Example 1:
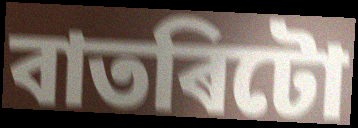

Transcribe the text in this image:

বাতৰিটো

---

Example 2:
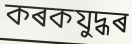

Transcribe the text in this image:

কৰকযুদ্ধৰ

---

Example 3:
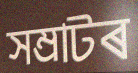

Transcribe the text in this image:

সম্ৰাটৰ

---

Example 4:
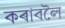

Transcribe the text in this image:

কৰাবলৈ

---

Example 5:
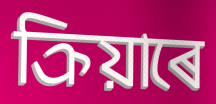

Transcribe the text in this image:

ক্ৰিয়াৰে